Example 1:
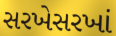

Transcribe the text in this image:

સરખેસરખાં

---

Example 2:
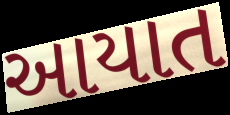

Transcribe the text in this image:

આયાત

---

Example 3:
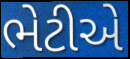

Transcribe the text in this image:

ભેટીએ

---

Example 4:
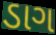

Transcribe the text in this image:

ડાગ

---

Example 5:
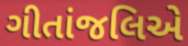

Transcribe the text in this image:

ગીતાંજલિએ